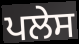
ਪਲੇਸ